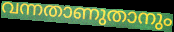
വന്നതാണുതാനും